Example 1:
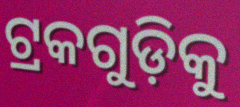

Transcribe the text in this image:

ଟ୍ରକଗୁଡ଼ିକୁ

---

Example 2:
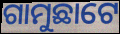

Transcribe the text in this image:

ଗାମୁଛାଟେ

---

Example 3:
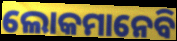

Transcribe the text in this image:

ଲୋକମାନେବି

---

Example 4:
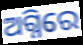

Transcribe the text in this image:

ଅଗ୍ନିରେ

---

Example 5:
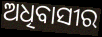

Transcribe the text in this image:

ଅଧିବାସୀର